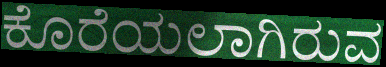
ಕೊರೆಯಲಾಗಿರುವ